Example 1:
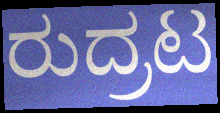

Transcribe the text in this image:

ರುದ್ರಟ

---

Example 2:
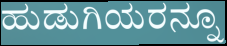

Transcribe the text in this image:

ಹುಡುಗಿಯರನ್ನೂ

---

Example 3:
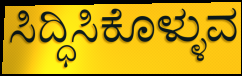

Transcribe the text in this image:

ಸಿದ್ಧಿಸಿಕೊಳ್ಳುವ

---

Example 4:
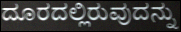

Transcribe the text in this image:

ದೂರದಲ್ಲಿರುವುದನ್ನು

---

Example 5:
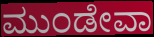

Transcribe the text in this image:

ಮುಂಡೇವಾ